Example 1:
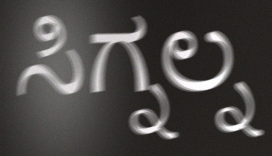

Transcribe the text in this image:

ಸಿಗ್ನಲ್ನ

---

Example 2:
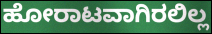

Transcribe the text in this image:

ಹೋರಾಟವಾಗಿರಲಿಲ್ಲ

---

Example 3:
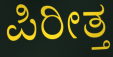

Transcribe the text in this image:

ಪಿರೀತ್ತ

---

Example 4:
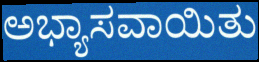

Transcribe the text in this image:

ಅಭ್ಯಾಸವಾಯಿತು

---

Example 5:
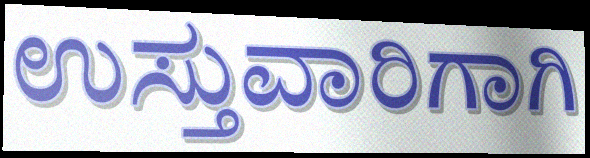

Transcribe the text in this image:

ಉಸ್ತುವಾರಿಗಾಗಿ